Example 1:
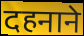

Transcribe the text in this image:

दहनाने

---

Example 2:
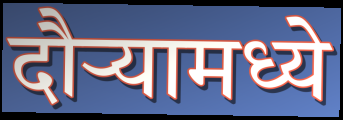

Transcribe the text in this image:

दौऱ्यामध्ये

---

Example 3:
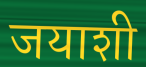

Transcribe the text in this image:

जयाशी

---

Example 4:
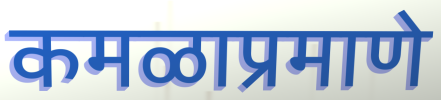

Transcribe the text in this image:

कमळाप्रमाणे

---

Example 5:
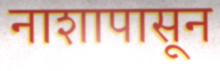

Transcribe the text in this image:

नाशापासून